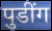
पुडींग